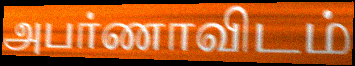
அபர்ணாவிடம்